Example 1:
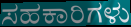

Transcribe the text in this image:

ಸಹಕಾರಿಗಳು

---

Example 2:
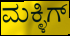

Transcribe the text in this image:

ಮಕ್ಳಿಗ್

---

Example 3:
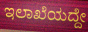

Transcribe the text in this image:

ಇಲಾಖೆಯದ್ದೇ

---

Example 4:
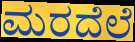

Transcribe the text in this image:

ಮರದೆಲೆ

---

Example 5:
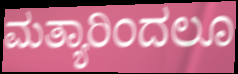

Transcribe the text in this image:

ಮತ್ಯಾರಿಂದಲೂ